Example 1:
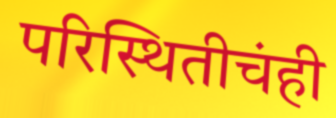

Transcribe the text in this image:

परिस्थितीचंही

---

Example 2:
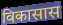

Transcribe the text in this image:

विकासास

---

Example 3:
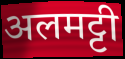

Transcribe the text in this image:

अलमट्टी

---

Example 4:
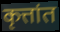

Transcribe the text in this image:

कृत्तांत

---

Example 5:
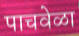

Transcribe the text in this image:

पाचवेळा